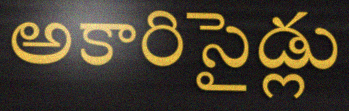
అకారిసైడ్లు